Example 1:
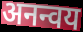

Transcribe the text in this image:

अनन्वय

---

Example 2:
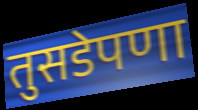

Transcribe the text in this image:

तुसडेपणा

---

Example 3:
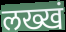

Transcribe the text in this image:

लख्खं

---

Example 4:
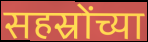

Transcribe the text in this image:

सहस्रोंच्या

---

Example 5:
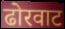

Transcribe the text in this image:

ढोरवाट